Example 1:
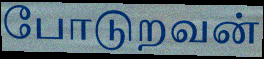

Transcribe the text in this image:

போடுறவன்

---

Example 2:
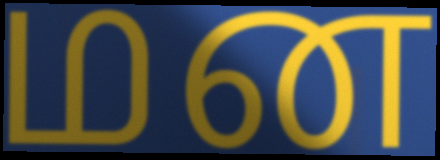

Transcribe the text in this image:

மன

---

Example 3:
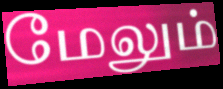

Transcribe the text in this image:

மேலும்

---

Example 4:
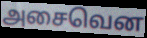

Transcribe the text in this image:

அசைவென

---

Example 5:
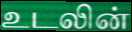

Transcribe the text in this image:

உடலின்